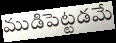
ముడిపెట్టడమే